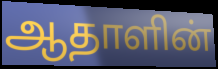
ஆதாளின்